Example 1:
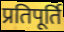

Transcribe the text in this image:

प्रतिपूर्ति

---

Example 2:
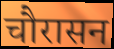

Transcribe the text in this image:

चौरासन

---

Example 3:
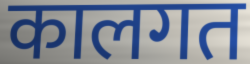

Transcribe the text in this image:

कालगत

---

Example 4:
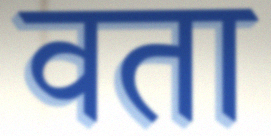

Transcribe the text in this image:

वता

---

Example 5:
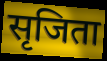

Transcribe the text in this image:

सृजिता